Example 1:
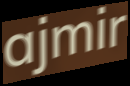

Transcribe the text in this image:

ajmir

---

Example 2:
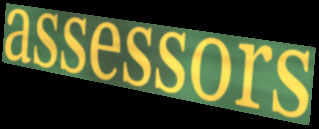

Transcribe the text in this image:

assessors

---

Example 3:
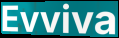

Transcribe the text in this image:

Evviva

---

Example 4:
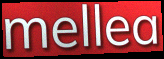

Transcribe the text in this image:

mellea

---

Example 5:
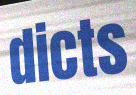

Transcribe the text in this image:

dicts